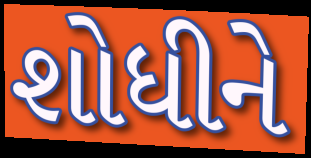
શોધીને